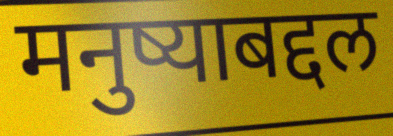
मनुष्याबद्दल